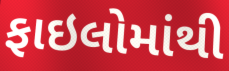
ફાઇલોમાંથી